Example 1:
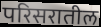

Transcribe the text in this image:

परिसरातील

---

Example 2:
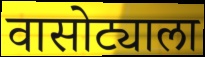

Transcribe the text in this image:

वासोट्याला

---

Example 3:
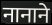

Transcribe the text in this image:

नानाने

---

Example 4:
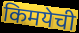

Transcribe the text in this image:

किमयेची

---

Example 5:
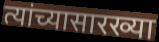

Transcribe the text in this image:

त्यांच्यासारख्या